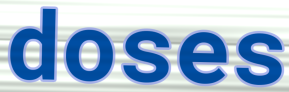
doses